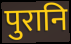
पुरानि